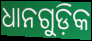
ଧାନଗୁଡ଼ିକ